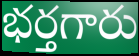
భర్తగారు